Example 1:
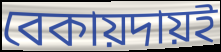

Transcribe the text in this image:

বেকায়দায়ই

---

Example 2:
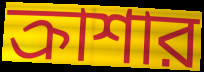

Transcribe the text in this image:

ক্রাশার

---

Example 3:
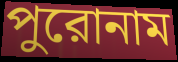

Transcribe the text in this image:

পুরোনাম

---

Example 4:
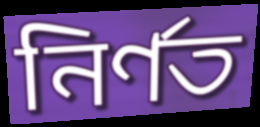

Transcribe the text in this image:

নির্ণত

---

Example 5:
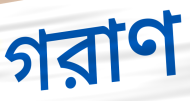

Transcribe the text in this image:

গরাণ